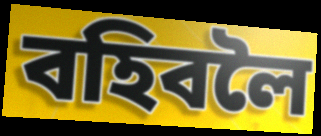
বহিবলৈ